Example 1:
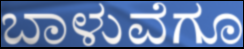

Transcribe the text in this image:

ಬಾಳುವೆಗೂ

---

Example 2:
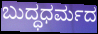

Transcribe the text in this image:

ಬುದ್ಧಧರ್ಮದ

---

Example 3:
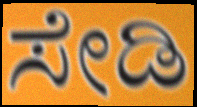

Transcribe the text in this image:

ಸೇಡಿ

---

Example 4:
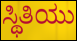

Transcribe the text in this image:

ಸ್ಥಿತಿಯು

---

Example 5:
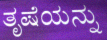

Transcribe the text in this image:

ತೃಷೆಯನ್ನು